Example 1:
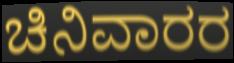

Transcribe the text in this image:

ಚಿನಿವಾರರ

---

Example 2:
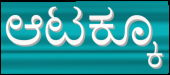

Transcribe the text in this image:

ಆಟಕ್ಕೂ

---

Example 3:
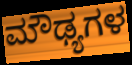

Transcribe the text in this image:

ಮೌಢ್ಯಗಳ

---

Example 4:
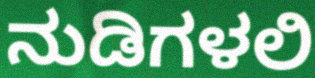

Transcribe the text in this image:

ನುಡಿಗಳಲಿ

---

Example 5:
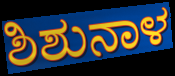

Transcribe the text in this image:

ಶಿಶುನಾಳ